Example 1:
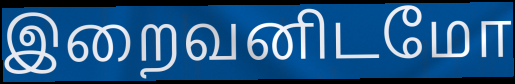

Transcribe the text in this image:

இறைவனிடமோ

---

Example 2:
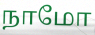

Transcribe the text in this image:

நாமோ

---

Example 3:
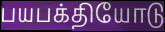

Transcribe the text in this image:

பயபக்தியோடு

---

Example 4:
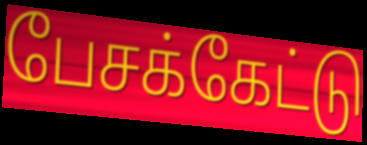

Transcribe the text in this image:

பேசக்கேட்டு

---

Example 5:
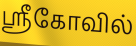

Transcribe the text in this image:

ஸ்ரீகோவில்